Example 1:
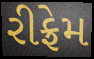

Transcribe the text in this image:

રીફ્રેમ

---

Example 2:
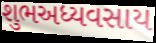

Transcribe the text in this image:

શુભઅધ્યવસાય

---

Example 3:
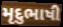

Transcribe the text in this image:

મૃદુભાષી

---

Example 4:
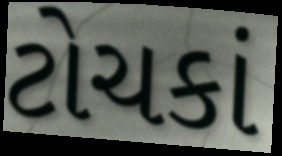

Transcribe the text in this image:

ટોચકાં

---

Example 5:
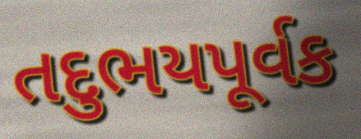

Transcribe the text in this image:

તદુભયપૂર્વક